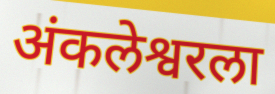
अंकलेश्वरला